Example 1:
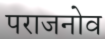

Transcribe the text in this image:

पराजनोव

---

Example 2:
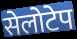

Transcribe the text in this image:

सेलोटेप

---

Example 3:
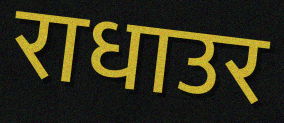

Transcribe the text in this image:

राधाउर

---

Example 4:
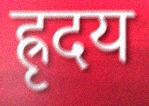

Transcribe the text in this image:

ह्रृदय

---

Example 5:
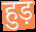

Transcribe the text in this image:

हुड़